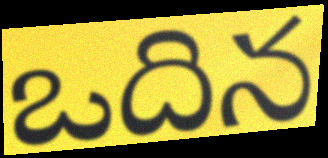
ఒదిన